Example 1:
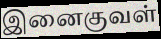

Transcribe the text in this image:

இனைகுவள்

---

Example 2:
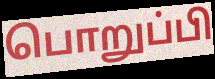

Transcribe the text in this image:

பொறுப்பி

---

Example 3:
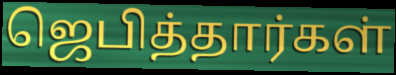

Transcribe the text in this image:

ஜெபித்தார்கள்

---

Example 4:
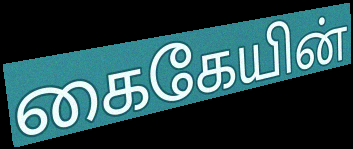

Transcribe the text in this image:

கைகேயின்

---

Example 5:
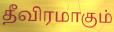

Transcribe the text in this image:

தீவிரமாகும்